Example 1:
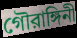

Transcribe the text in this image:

গৌরাঙ্গিনী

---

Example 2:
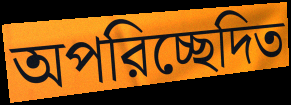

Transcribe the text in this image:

অপরিচ্ছেদিত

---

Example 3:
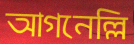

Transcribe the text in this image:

আগনেল্লি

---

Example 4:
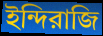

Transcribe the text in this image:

ইন্দিরাজি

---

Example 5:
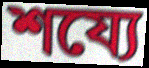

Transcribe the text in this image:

শয্যে